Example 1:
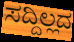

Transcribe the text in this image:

ಸದ್ದಿಲ್ಲದ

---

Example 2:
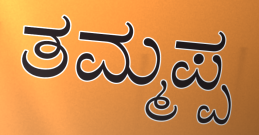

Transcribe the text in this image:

ತಮ್ಮಪ್ಪ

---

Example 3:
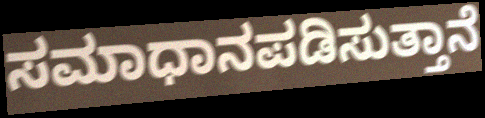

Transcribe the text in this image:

ಸಮಾಧಾನಪಡಿಸುತ್ತಾನೆ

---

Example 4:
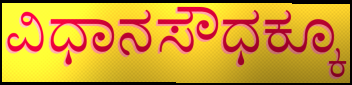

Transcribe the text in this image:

ವಿಧಾನಸೌಧಕ್ಕೂ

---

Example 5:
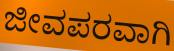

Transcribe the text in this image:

ಜೀವಪರವಾಗಿ